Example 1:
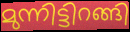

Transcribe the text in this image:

മുന്നിട്ടിറങ്ങി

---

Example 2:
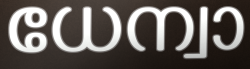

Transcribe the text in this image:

ധേന്വാ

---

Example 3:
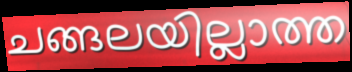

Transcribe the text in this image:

ചങ്ങലയില്ലാത്ത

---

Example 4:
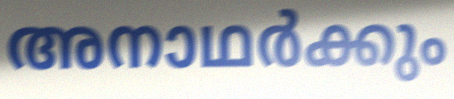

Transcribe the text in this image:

അനാഥർക്കും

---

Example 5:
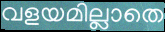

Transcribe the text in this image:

വളയമില്ലാതെ